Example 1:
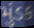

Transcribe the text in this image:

મુંડક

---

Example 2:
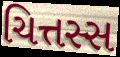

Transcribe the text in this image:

ચિત્તસ્સ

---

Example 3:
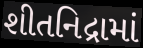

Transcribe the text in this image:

શીતનિદ્રામાં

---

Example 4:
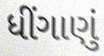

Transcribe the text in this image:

ધીંગાણું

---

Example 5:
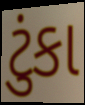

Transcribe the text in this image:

ટુંકા